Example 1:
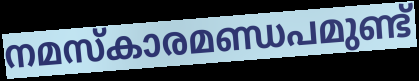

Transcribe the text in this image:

നമസ്കാരമണ്ഡപമുണ്ട്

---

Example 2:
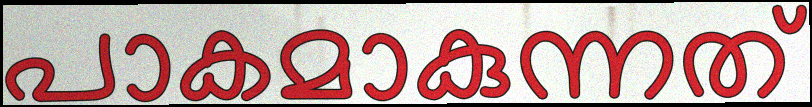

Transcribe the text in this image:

പാകമാകുന്നത്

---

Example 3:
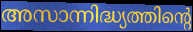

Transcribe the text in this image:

അസാന്നിദ്ധ്യത്തിന്റെ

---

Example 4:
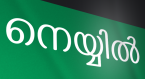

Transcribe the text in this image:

നെയ്യിൽ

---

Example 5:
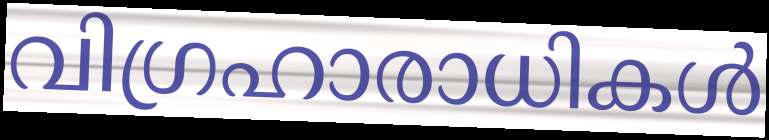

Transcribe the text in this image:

വിഗ്രഹാരാധികൾ